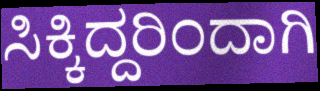
ಸಿಕ್ಕಿದ್ದರಿಂದಾಗಿ